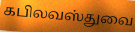
கபிலவஸ்துவை